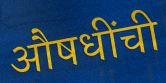
औषधींची